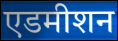
एडमीशन